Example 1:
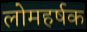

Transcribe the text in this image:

लोमहर्षक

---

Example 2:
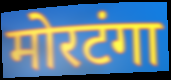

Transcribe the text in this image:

मोरटंगा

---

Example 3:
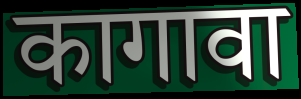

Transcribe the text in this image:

कागावा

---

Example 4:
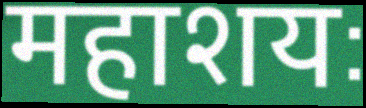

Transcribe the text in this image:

महाशयः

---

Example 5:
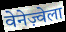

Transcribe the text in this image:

वेनेज़्वेला